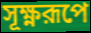
সূক্ষ্ণরূপে